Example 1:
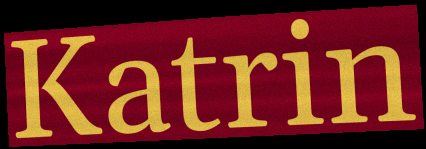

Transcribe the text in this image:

Katrin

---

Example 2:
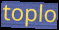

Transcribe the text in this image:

toplo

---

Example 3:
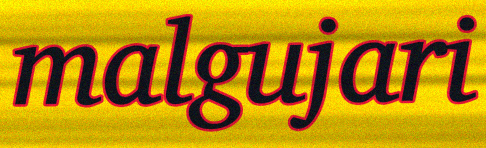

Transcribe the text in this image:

malgujari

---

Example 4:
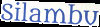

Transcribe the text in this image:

Silambu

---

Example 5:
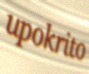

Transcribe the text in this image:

upokrito